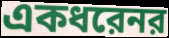
একধরেনর